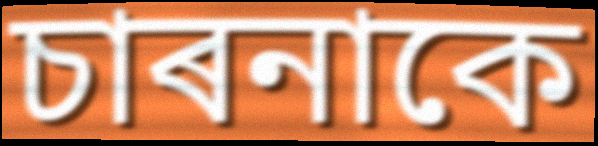
চাৰনাকে